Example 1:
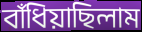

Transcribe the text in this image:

বাঁধিয়াছিলাম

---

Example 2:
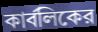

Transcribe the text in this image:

কার্বলিকের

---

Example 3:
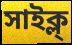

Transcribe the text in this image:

সাইক্ল্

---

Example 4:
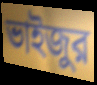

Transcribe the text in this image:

ভাইজুর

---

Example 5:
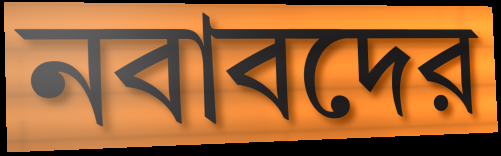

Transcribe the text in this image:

নবাবদের